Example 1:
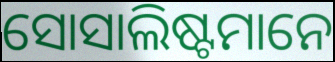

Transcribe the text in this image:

ସୋସାଲିଷ୍ଟମାନେ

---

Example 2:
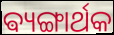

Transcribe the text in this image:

ଵ୍ୟଙ୍ଗାର୍ଥକ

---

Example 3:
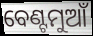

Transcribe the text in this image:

ବେଣ୍ଟମୁଆଁ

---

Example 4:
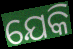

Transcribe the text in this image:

ଯେକି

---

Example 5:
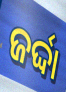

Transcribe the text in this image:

ଜର୍ଦ୍ଦା